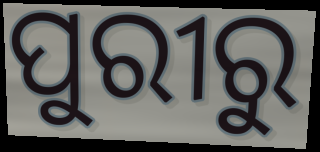
ପୁରୀରୁ